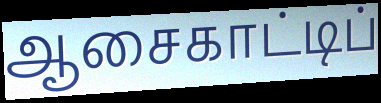
ஆசைகாட்டிப்